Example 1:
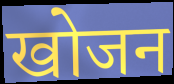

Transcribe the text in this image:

खोजन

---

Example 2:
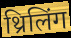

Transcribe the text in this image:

थ्रिलिंग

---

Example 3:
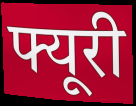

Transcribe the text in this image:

फ्यूरी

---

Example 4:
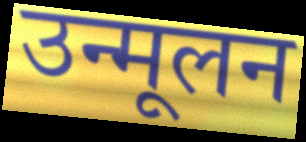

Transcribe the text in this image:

उन्‍मूलन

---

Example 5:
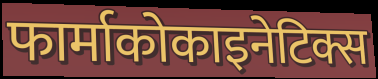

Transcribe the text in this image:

फार्माकोकाइनेटिक्स